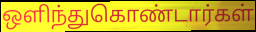
ஒளிந்துகொண்டார்கள்